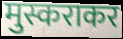
मुस्कराकर